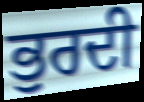
ਭੁਰਦੀ